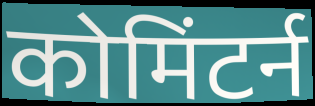
कोमिंटर्न